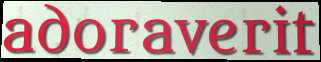
adoraverit